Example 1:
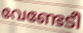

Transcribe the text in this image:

വേണ്ടേടീ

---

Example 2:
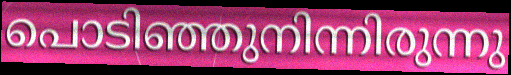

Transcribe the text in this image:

പൊടിഞ്ഞുനിന്നിരുന്നു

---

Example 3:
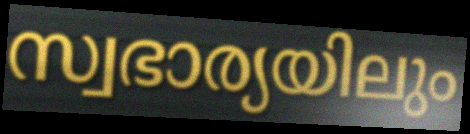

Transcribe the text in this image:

സ്വഭാര്യയിലും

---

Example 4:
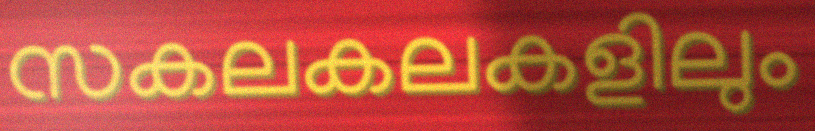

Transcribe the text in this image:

സകലകലകളിലും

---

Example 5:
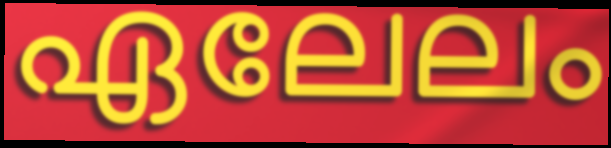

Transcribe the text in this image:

ഏലേലം